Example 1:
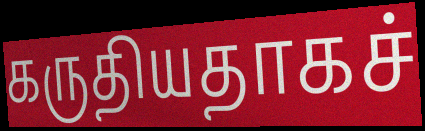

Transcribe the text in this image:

கருதியதாகச்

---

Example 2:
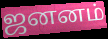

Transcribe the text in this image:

ஜனனம்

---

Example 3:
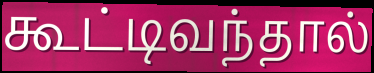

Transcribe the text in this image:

கூட்டிவந்தால்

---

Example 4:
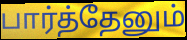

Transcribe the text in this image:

பார்த்தேனும்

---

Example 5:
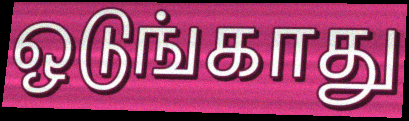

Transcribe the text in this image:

ஒடுங்காது